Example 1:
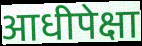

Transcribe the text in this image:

आधीपेक्षा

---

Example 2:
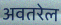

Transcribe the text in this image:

अवतरेल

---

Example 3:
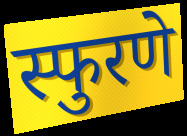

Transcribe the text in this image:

स्फुरणे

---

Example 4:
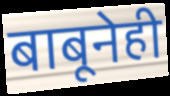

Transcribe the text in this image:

बाबूनेही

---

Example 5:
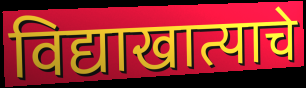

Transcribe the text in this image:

विद्याखात्याचे